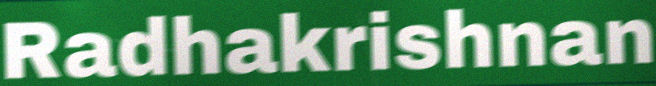
Radhakrishnan